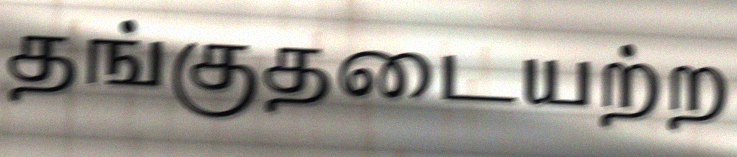
தங்குதடையற்ற